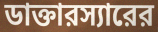
ডাক্তারস্যারের